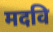
मदवि